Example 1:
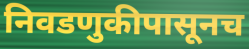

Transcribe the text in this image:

निवडणुकीपासूनच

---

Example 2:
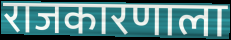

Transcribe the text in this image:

राजकारणाला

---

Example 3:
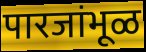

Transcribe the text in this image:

पारजांभूळ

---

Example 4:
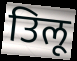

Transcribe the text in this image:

उिलू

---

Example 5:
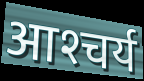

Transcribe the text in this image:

आश्चर्य